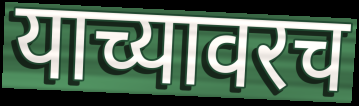
याच्यावरच